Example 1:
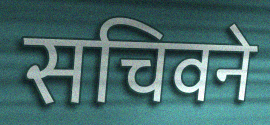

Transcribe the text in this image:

सचिवने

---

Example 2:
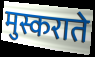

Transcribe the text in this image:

मुस्कराते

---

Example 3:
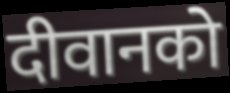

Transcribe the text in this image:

दीवानको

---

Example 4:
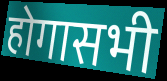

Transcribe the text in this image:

होगासभी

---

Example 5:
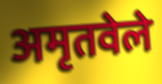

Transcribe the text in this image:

अमृतवेले